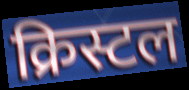
क्रिस्टल